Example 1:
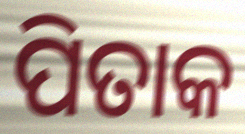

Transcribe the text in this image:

ପିତାକ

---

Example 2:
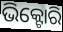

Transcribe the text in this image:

ଭିକ୍ଟୋରି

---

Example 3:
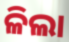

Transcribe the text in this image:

ଳିଲା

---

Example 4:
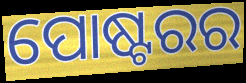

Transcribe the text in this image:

ପୋଷ୍ଟରର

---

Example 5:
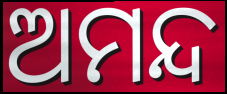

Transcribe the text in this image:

ଅମନ୍ଦ